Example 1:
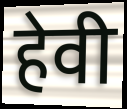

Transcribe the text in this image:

हेवी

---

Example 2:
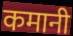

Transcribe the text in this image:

कमानी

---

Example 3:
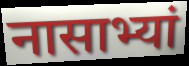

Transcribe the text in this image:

नासाभ्यां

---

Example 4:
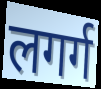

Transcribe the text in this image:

लगर्ग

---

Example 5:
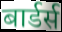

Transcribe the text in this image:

बार्डर्स